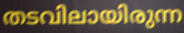
തടവിലായിരുന്ന